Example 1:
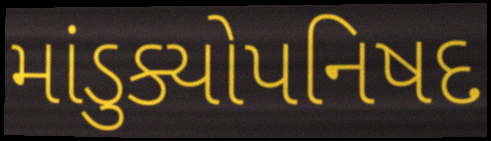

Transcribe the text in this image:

માંડુક્યોપનિષદ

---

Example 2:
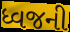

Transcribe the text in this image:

ધ્વજની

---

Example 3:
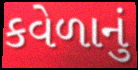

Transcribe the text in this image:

કવેળાનું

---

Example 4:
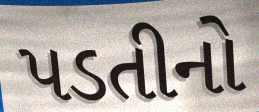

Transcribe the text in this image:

પડતીનો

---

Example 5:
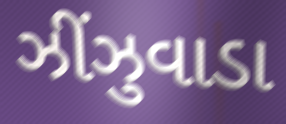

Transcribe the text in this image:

ઝીંઝુવાડા